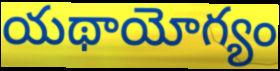
యథాయోగ్యం